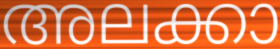
അലക്കാ